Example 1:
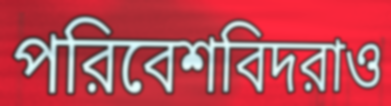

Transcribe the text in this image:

পরিবেশবিদরাও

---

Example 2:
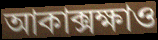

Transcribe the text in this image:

আকাক্সক্ষাও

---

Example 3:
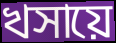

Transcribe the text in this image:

খসায়ে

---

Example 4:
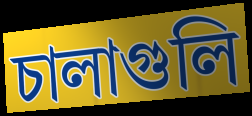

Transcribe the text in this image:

চালাগুলি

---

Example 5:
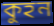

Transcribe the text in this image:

কুহন